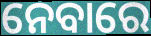
ନେବାରେ